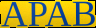
APAB